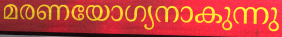
മരണയോഗ്യനാകുന്നു